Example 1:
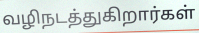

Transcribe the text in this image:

வழிநடத்துகிறார்கள்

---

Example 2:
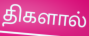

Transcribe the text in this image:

திகளால்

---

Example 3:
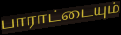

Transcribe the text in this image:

பாராட்டையும்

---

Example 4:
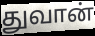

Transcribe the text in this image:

துவான்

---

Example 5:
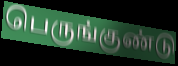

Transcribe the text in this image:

பெருங்குண்டு